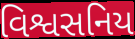
વિશ્વસનિય